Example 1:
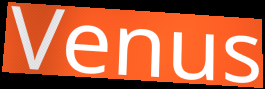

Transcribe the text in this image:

Venus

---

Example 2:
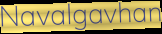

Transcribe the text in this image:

Navalgavhan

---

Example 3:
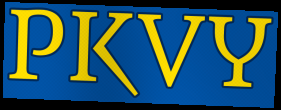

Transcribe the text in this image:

PKVY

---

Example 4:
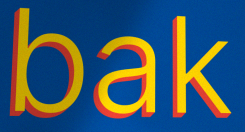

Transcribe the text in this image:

bak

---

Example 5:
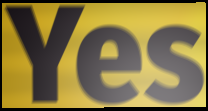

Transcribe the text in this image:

Yes